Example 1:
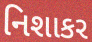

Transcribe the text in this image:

નિશાકર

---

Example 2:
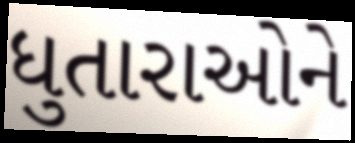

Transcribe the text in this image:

ધુતારાઓને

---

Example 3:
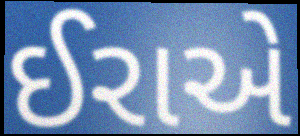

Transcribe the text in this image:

ઈરાએ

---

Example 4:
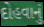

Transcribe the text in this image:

દોહવાનું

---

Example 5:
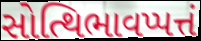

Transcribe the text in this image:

સોત્થિભાવપ્પત્તં